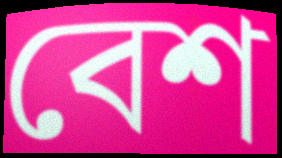
বেশ